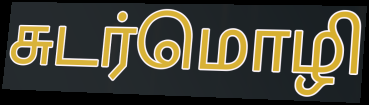
சுடர்மொழி